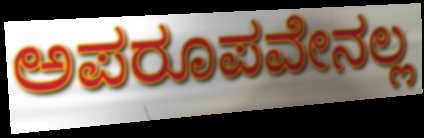
ಅಪರೂಪವೇನಲ್ಲ